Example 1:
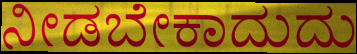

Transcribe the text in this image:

ನೀಡಬೇಕಾದುದು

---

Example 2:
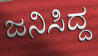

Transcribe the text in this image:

ಜನಿಸಿದ್ದ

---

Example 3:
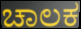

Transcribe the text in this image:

ಚಾಲಕ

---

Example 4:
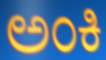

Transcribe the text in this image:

ಅಂಕಿ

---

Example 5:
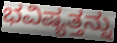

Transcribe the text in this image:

ಭವಿಷ್ಯತ್ತನ್ನು